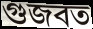
গুজবত